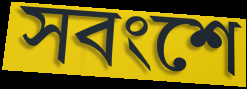
সবংশে